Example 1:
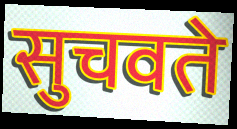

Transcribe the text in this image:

सुचवते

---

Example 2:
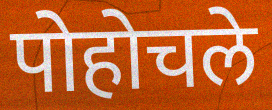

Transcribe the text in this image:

पोहोचले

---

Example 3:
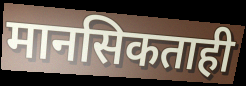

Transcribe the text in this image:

मानसिकताही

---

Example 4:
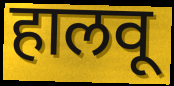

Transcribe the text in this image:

हालवू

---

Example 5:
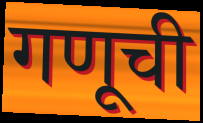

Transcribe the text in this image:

गणूची